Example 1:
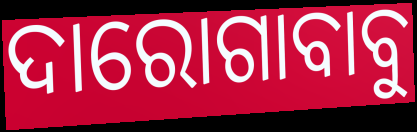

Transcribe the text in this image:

ଦାରୋଗାବାବୁ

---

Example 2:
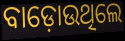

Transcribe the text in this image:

ବାଡ଼ୋଉଥିଲେ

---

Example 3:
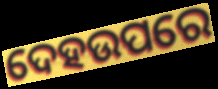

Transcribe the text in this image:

ଦେହଉପରେ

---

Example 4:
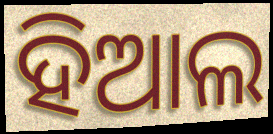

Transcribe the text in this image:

ହିଆଲ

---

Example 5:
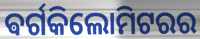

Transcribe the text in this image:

ଵର୍ଗକିଲୋମିଟରର